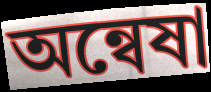
অন্বেষা